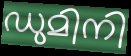
ഡുമിനി